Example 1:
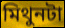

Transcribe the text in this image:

মিথুনটা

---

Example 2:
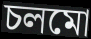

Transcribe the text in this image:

চলমো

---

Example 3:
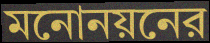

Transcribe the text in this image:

মনোনয়নের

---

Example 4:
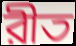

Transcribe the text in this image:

রীত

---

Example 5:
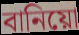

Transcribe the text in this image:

বানিয়ো